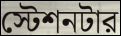
স্টেশনটার